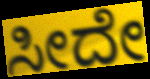
ಸೀದೇ